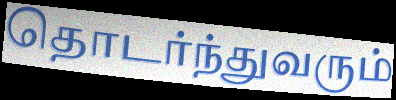
தொடர்ந்துவரும்